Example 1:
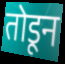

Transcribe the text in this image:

तोडून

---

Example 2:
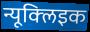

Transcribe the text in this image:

न्यूक्‍लिइक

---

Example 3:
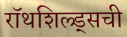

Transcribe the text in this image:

रॉथशिल्ड्सची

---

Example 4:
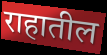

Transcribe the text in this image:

राहातील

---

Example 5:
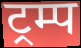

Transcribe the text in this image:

ट्रम्प